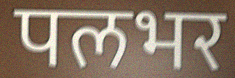
पलभर